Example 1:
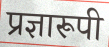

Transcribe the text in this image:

प्रज्ञारूपी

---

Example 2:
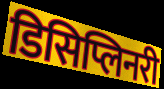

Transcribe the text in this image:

डिसिप्लिनरी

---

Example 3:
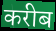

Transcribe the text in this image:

करीब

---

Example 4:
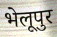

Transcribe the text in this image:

भेलूपुर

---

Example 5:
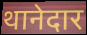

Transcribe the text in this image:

थानेदार